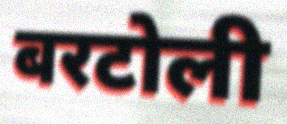
बरटोली